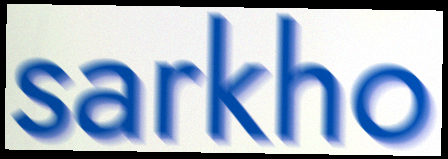
sarkho